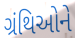
ગ્રંથિઓને